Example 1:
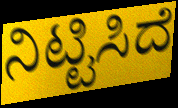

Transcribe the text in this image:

ನಿಟ್ಟಿಸಿದೆ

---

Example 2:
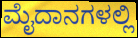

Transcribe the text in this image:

ಮೈದಾನಗಳಲ್ಲಿ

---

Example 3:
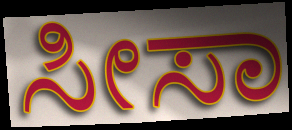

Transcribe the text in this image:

ಸೀಸಾ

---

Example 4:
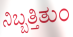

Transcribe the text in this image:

ನಿಬ್ಬತ್ತಿತುಂ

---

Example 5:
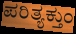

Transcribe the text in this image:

ಪರಿತ್ಯಕ್ತುಂ